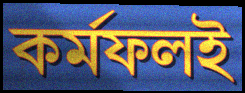
কর্মফলই